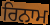
ਰਿਨਾਮ